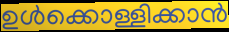
ഉൾക്കൊള്ളിക്കാൻ